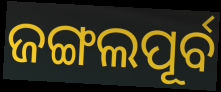
ଜଙ୍ଗଲପୂର୍ବ